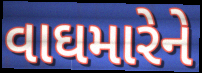
વાઘમારેને